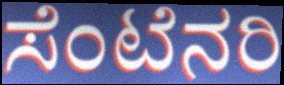
ಸೆಂಟೆನರಿ